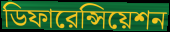
ডিফারেন্সিয়েশন